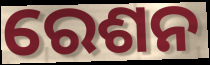
ରେଶନ